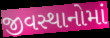
જીવસ્થાનોમાં